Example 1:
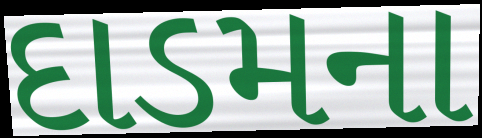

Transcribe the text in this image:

દાડમના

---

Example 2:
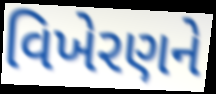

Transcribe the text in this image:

વિખેરણને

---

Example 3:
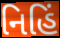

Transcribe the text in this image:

નિહિં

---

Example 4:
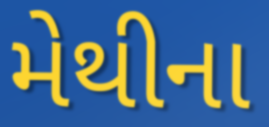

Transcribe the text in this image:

મેથીના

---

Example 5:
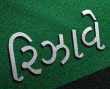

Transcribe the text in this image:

રિઝાવે